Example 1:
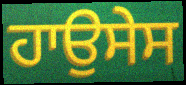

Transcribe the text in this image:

ਹਾਉਸੇਸ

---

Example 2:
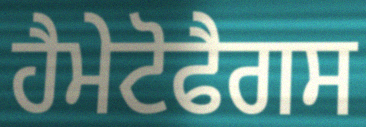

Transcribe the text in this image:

ਹੈਮੇਟੋਫੈਗਸ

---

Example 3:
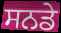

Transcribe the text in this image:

ਸਨਡੇ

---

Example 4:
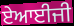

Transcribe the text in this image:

ਏਆਈਜੀ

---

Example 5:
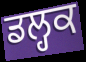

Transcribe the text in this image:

ਡਲ੍ਹਕ